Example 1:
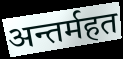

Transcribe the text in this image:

अन्तर्महत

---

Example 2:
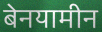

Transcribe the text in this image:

बेनयामीन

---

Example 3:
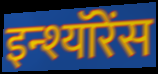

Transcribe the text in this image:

इन्श्यॉरेंस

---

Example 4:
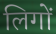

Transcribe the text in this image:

लिगों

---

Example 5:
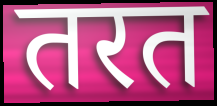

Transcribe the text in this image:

तरत